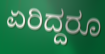
ಏರಿದ್ದರೂ